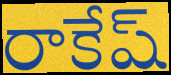
రాకేష్